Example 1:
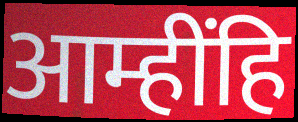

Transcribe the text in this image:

आम्हींहि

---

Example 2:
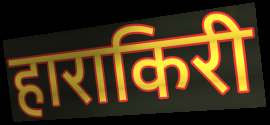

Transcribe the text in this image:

हाराकिरी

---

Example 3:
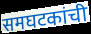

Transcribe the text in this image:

समघटकांची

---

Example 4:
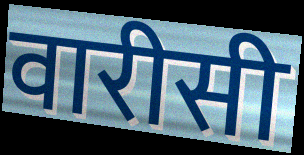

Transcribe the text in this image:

वारीसी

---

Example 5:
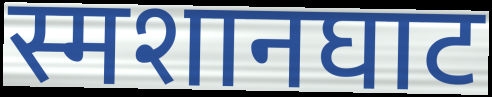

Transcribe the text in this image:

स्मशानघाट